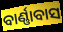
ବାର୍ଣ୍ଣାବାସ